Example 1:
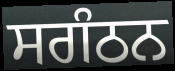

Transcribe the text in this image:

ਸਗੰਠਨ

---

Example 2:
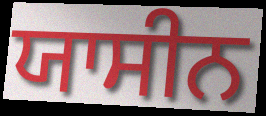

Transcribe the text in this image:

ਯਾਸੀਨ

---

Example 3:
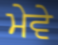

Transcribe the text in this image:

ਮੇਵੇ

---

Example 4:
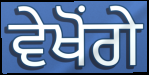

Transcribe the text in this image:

ਵੇਖੋਂਗੇ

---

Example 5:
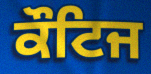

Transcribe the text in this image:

ਕੌਟਿਜ